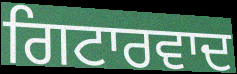
ਗਿਟਾਰਵਾਦ